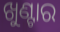
ଖୁଣ୍ଟାର